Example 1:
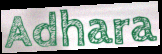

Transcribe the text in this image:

Adhara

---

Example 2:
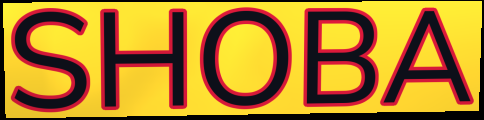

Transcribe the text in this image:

SHOBA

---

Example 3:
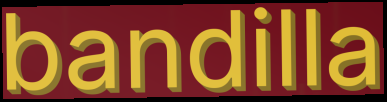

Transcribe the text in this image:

bandilla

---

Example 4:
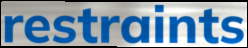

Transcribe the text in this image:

restraints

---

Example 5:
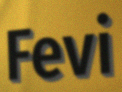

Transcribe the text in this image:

Fevi